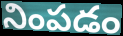
నింపడం